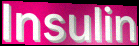
Insulin